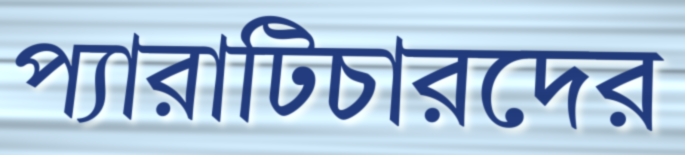
প্যারাটিচারদের